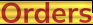
Orders